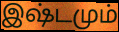
இஷ்டமும்